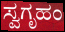
ಸ್ವಗೃಹಂ